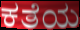
ಕತೆಯ